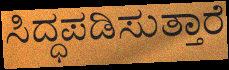
ಸಿದ್ಧಪಡಿಸುತ್ತಾರೆ